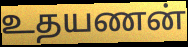
உதயணன்